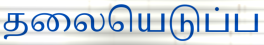
தலையெடுப்ப